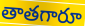
తాతగారూ